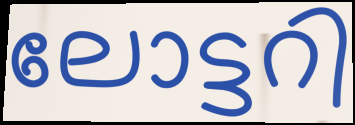
ലോട്ടറി